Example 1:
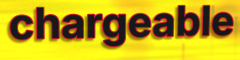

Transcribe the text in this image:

chargeable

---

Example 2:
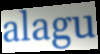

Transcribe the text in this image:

alagu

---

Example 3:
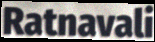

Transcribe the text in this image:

Ratnavali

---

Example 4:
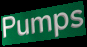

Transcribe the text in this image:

Pumps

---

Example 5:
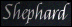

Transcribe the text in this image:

Shephard